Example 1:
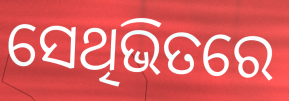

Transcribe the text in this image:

ସେଥିଭିତରେ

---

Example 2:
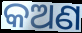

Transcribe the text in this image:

କଅଣ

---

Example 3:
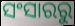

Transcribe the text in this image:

ସଂସାରରୁ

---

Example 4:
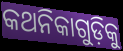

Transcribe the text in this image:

କଥନିକାଗୁଡ଼ିକୁ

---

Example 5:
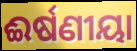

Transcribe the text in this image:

ଈର୍ଷଣୀୟା